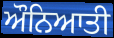
ਔਨਿਆਤੀ